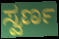
ಸ್ವರ್ಣ